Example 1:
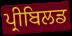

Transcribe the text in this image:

ਪ੍ਰੀਬਿਲਡ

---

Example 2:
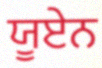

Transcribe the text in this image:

ਯੂਏਨ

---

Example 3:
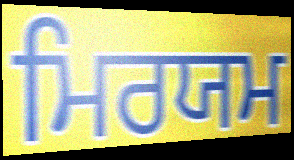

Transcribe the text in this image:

ਮਿਰਯਮ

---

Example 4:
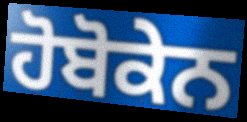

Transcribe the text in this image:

ਹੋਬੋਕੇਨ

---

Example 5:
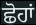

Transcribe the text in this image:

ਛੋਹਾਂ